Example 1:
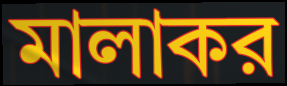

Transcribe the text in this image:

মালাকর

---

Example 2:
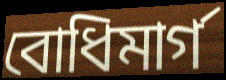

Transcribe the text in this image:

বোধিমার্গ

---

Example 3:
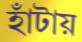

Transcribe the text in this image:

হাঁটায়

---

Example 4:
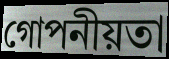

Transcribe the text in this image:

গোপনীয়তা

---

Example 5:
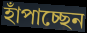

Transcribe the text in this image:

হাঁপাচ্ছেন